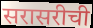
सरासरीची